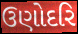
ઉણોદરિ